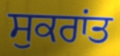
ਸੁਕਰਾਂਤ